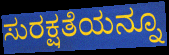
ಸುರಕ್ಷತೆಯನ್ನೂ